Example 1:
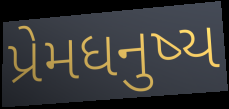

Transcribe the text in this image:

પ્રેમધનુષ્ય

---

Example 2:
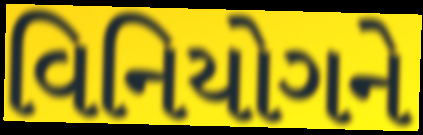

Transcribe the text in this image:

વિનિયોગને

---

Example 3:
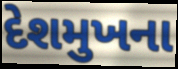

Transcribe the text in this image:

દેશમુખના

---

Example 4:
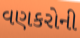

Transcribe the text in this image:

વણકરોની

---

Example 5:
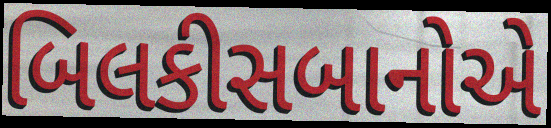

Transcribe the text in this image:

બિલકીસબાનોએ